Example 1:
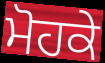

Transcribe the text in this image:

ਮੋਹਕੇ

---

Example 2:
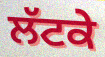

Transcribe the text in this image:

ਲੱਟਕੇ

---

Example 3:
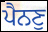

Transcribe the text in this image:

ਪੈਨਣੁ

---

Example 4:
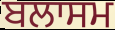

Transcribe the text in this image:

ਬਲਾਸਮ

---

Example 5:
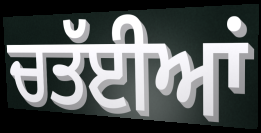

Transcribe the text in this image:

ਚਤੱਈਆਂ